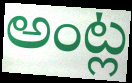
అంట్ల